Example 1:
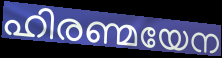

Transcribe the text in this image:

ഹിരണ്മയേന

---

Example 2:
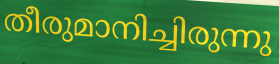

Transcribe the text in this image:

തീരുമാനിച്ചിരുന്നു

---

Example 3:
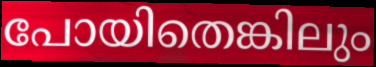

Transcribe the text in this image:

പോയിതെങ്കിലും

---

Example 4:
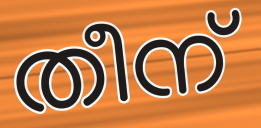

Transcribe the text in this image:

തീന്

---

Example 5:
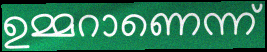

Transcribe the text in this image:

ഉമ്മറാണെന്ന്